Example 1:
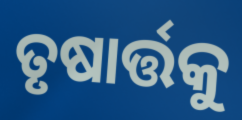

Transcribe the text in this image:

ତୃଷାର୍ତ୍ତକୁ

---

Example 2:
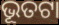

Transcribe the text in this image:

ଭୂତଟା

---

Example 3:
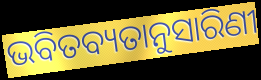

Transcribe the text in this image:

ଭବିତବ୍ୟତାନୁସାରିଣୀ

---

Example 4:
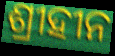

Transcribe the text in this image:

ଶ୍ରୀହୀନ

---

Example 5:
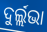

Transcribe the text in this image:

ଦୁର୍ଲ୍ଲଭା